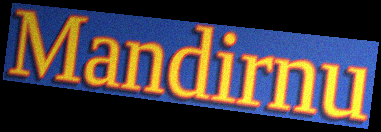
Mandirnu